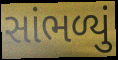
સાંભળ્યું